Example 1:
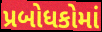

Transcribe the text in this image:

પ્રબોધકોમાં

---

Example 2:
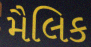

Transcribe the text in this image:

મૈલિક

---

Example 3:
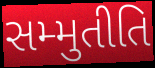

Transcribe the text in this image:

સમ્મુતીતિ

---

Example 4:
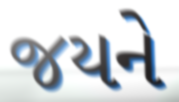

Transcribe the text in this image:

જયને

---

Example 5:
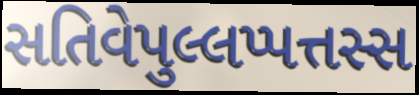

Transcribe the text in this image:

સતિવેપુલ્લપ્પત્તસ્સ